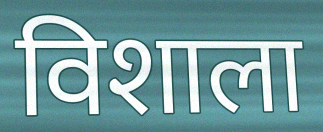
विशाला